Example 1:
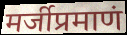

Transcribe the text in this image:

मर्जीप्रमाणं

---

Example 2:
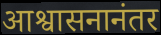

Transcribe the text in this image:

आश्वासनानंतर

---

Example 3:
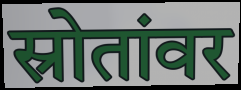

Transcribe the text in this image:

स्रोतांवर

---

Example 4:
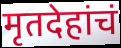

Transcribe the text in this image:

मृतदेहांचं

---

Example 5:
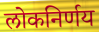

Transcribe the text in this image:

लोकनिर्णय